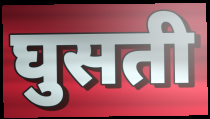
घुसती